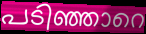
പടിഞ്ഞാറെ